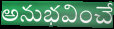
అనుభవించే